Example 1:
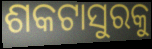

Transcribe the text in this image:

ଶକଟାସୁରକୁ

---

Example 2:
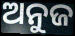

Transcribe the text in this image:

ଅନୁଜ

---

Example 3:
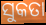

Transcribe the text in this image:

ସୁକତା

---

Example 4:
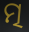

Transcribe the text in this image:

ତ୍ମ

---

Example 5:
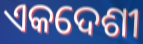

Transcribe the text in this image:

ଏକଦେଶୀ